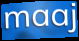
maaj